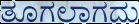
ತೂಗಲಾಗದು